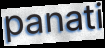
panati